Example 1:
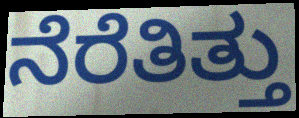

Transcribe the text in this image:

ನೆರೆತಿತ್ತು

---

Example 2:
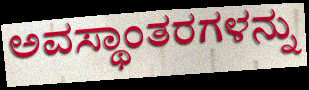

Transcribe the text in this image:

ಅವಸ್ಥಾಂತರಗಳನ್ನು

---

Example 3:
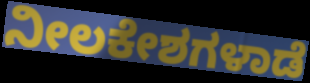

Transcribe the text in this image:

ನೀಲಕೇಶಗಳಾಡೆ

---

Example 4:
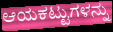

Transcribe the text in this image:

ಆಯಕಟ್ಟುಗಳನ್ನು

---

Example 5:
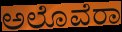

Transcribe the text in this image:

ಅಲೊವೆರಾ